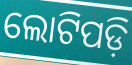
ଲୋଟିପଡ଼ି